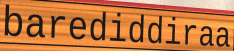
barediddiraa